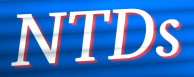
NTDs